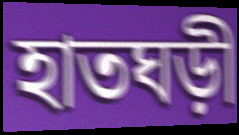
হাতঘড়ী